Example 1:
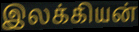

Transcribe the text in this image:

இலக்கியன்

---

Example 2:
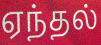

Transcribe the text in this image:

ஏந்தல்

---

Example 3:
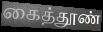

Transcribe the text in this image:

கைத்தூண்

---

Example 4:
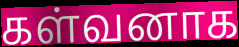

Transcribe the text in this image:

கள்வனாக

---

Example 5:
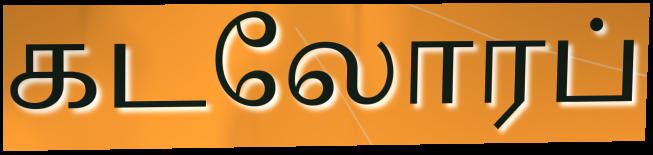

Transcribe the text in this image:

கடலோரப்